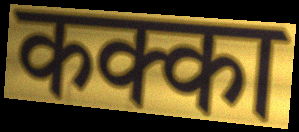
कक्का